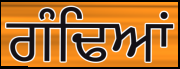
ਗੰਢਿਆਂ